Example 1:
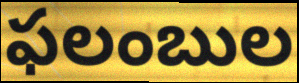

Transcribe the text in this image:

ఫలంబుల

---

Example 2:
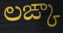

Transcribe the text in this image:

లఙ్కా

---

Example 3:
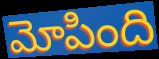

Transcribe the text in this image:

మోపింది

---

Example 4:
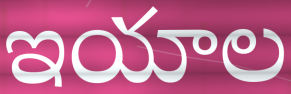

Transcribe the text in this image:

ఇయాల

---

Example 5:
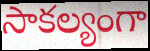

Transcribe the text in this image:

సాకల్యంగా